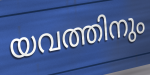
യവത്തിനും